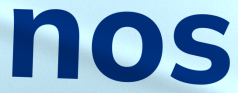
nos